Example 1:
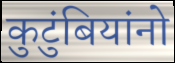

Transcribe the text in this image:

कुटुंबियांनो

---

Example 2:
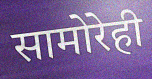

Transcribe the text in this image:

सामोरेही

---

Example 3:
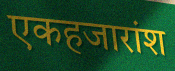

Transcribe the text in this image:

एकहजारांश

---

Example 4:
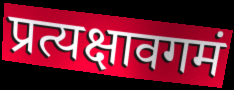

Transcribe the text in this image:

प्रत्यक्षावगमं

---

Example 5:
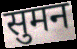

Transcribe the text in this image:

सुमन